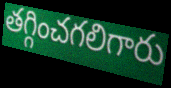
తగ్గించగలిగారు